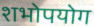
शभोपयोग